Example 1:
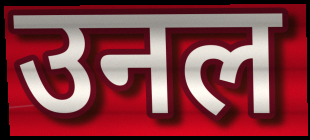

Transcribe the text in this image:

उनल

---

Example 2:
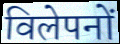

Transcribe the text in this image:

विलेपनों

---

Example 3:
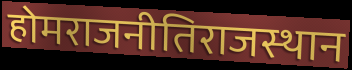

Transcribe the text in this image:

होमराजनीतिराजस्थान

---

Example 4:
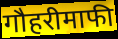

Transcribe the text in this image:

गौहरीमाफी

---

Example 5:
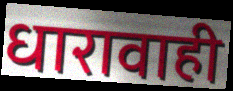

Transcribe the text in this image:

धारावाही